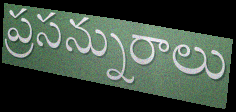
ప్రసన్నురాలు